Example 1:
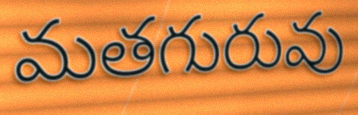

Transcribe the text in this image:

మతగురువు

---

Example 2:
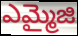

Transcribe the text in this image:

ఎమ్మైజి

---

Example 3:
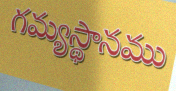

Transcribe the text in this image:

గమ్యస్థానము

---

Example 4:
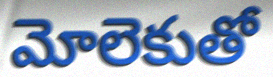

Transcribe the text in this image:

మోలెకుతో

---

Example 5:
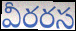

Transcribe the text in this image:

వీరరస